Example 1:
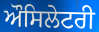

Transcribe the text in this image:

ਔਸਿਲੇਟਰੀ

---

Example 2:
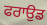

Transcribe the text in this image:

ਫਰਾਉਡ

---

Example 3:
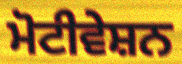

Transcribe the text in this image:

ਮੋਟੀਵੇਸ਼ਨ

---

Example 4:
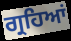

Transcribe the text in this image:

ਗ੍ਰਹਿਆਂ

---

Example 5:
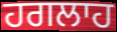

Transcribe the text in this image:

ਹਗਲਾਹ